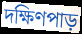
দক্ষিণপাড়